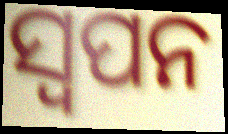
ସ୍ବପନ